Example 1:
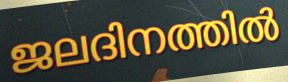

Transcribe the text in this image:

ജലദിനത്തിൽ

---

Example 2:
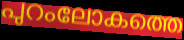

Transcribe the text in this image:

പുറംലോകത്തെ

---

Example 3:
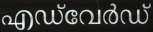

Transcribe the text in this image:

എഡ്‌വേർഡ്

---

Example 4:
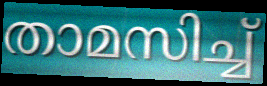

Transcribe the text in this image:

താമസിച്ച്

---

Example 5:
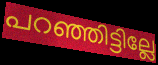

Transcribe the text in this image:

പറഞ്ഞിട്ടില്ലേ